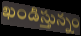
ఖండిస్తున్నం